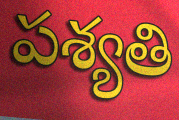
పశ్యతి